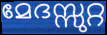
മേദസ്സുറ്റ